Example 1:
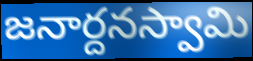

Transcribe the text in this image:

జనార్దనస్వామి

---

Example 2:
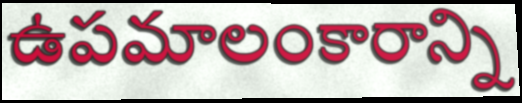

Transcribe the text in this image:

ఉపమాలంకారాన్ని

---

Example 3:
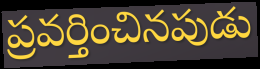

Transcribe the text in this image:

ప్రవర్తించినపుడు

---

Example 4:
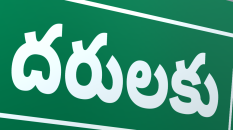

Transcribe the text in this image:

దరులకు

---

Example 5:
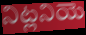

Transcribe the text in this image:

నిట్లనియె